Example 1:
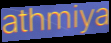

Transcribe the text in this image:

athmiya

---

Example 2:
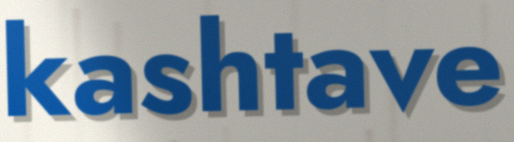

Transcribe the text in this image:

kashtave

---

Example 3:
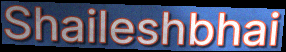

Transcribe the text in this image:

Shaileshbhai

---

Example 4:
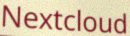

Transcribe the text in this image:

Nextcloud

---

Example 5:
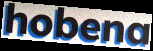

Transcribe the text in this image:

hobena